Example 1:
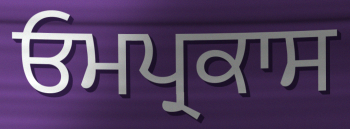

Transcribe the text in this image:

ਓਮਪ੍ਰਕਾਸ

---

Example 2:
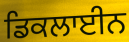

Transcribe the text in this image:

ਡਿਕਲਾਈਨ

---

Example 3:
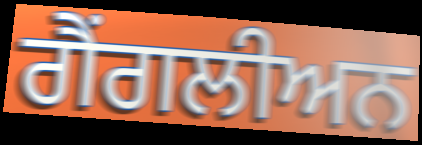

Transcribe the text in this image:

ਗੈਂਗਲੀਅਨ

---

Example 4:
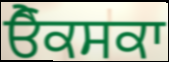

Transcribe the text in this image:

ਓੈਕਸਕਾ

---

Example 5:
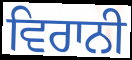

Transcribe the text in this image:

ਵਿਰਾਨੀ